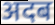
अदब